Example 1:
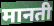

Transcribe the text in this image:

मानती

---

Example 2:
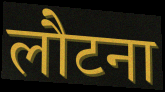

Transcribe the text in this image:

लौटना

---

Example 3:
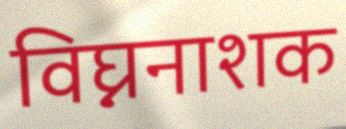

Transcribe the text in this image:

विघ्ननाशक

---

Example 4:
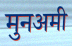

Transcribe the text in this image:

मुनअमी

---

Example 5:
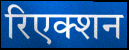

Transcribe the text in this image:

रिएक्शन